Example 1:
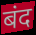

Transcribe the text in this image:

बंद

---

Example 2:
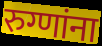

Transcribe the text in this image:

रुग्णांना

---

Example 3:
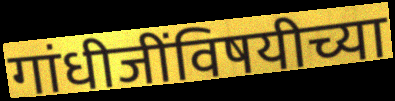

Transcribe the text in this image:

गांधीजींविषयीच्या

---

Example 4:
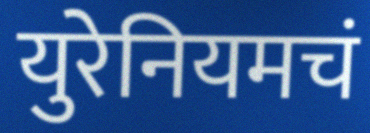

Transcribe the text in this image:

युरेनियमचं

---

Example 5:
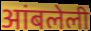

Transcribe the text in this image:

आंबलेली